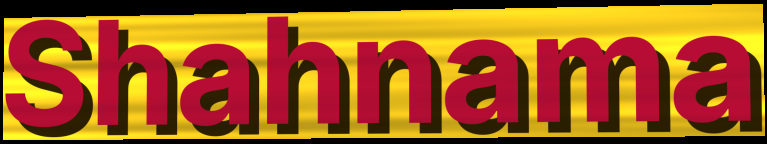
Shahnama